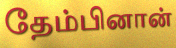
தேம்பினான்